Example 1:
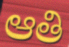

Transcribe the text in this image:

ఆతి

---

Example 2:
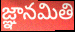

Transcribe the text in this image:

జ్ఞానమితి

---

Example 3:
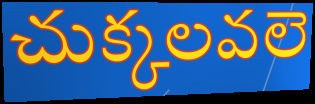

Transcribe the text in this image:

చుక్కలవలె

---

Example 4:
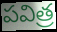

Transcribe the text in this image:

పవిత్ర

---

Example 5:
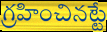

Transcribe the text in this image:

గ్రహించినట్టే